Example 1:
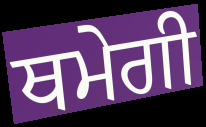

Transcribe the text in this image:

ਥਮੇਗੀ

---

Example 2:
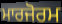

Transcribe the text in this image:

ਮਾਰਜੋਰਮ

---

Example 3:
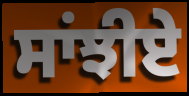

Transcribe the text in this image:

ਸਾਂਝੀਏ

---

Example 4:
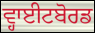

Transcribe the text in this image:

ਵ੍ਹਾਈਟਬੋਰਡ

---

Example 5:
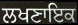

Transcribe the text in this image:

ਲਖਣਾਇਕ